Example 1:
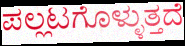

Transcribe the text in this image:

ಪಲ್ಲಟಗೊಳ್ಳುತ್ತದೆ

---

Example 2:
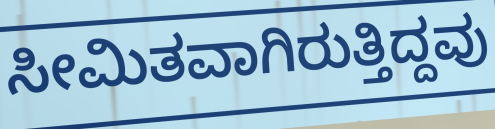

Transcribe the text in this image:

ಸೀಮಿತವಾಗಿರುತ್ತಿದ್ದವು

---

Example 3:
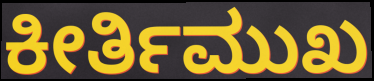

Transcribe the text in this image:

ಕೀರ್ತಿಮುಖ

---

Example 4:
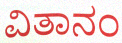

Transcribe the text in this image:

ವಿತಾನಂ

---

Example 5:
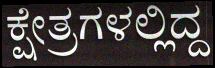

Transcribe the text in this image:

ಕ್ಷೇತ್ರಗಳಲ್ಲಿದ್ದ